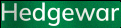
Hedgewar